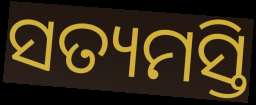
ସତ୍ୟମସ୍ତି